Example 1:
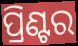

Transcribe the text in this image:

ପ୍ରିଣ୍ଟର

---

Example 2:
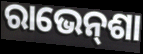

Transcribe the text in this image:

ରାଭେନ୍‌ଶା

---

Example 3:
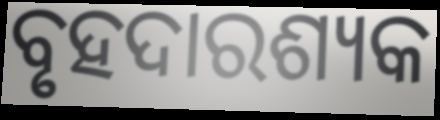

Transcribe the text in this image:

ବୃହଦାରଶ୍ୟକ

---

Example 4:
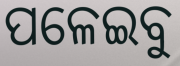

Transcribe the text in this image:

ପଳେଇବୁ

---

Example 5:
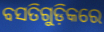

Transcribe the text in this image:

ବସତିଗୁଡ଼ିକରେ